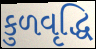
કુળવૃદ્ધિ